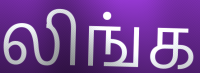
லிங்க